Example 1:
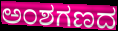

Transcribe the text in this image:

ಅಂಶಗಣದ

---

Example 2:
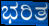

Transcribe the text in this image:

ಭರಿತ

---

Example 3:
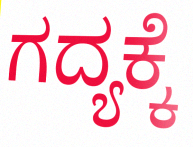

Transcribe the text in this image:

ಗದ್ಯಕ್ಕೆ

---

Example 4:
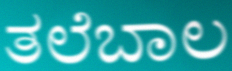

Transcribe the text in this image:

ತಲೆಬಾಲ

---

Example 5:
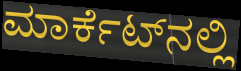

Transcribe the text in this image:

ಮಾರ್ಕೆಟ್‍ನಲ್ಲಿ